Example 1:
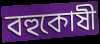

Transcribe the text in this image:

বহুকোষী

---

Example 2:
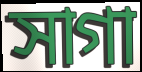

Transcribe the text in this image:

সাগা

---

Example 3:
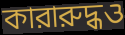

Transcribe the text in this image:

কারারুদ্ধও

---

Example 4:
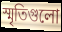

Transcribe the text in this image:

স্মৃতিগুলো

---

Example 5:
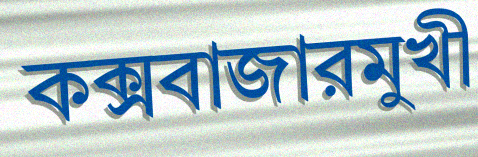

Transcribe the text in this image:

কক্সবাজারমুখী